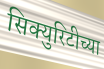
सिक्युरिटीच्या